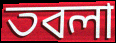
তবলা